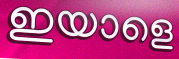
ഇയാളെ